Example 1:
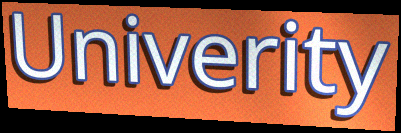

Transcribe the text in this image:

Univerity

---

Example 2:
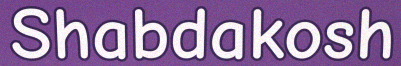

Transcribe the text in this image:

Shabdakosh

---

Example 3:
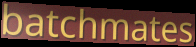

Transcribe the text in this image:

batchmates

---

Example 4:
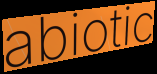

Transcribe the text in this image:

abiotic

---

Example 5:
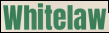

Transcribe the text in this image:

Whitelaw